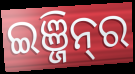
ଇଞ୍ଜିନ୍‍ର